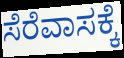
ಸೆರೆವಾಸಕ್ಕೆ